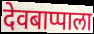
देवबाप्पाला